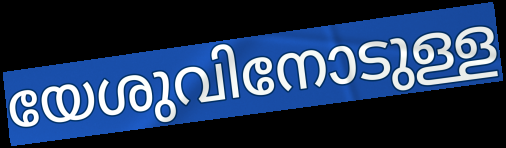
യേശുവിനോടുള്ള